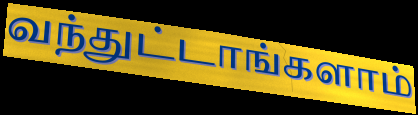
வந்துட்டாங்களாம்